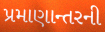
પ્રમાણાન્તરની